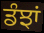
ਡੰਝਾਂ